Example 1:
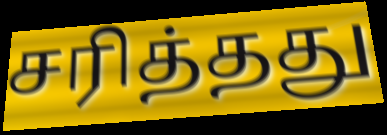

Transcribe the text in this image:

சரித்தது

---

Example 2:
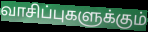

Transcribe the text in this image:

வாசிப்புகளுக்கும்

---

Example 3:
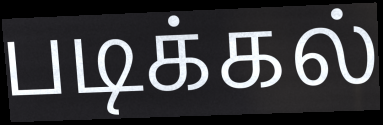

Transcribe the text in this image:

படிக்கல்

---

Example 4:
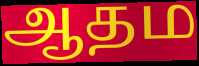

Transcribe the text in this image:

ஆதம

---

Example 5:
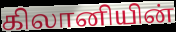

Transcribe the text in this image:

கிலானியின்